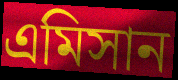
এমিসান